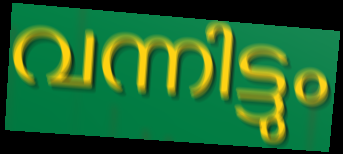
വന്നിട്ടും